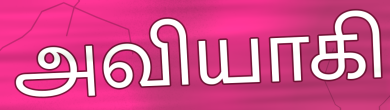
அவியாகி